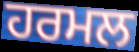
ਹਰਮਲ